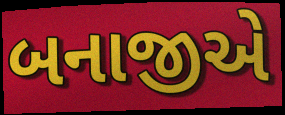
બનાજીએ